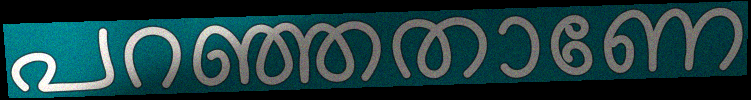
പറഞ്ഞതാണേ